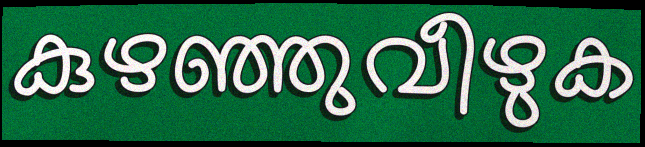
കുഴഞ്ഞുവീഴുക